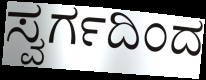
ಸ್ವರ್ಗದಿಂದ